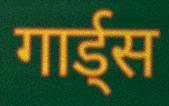
गार्ड्स